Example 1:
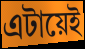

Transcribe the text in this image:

এটায়েই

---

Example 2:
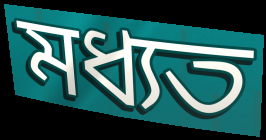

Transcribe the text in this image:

মধ্যত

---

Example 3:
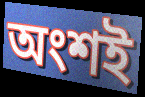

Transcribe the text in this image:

অংশই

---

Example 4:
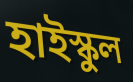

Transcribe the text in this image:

হাইস্কুল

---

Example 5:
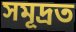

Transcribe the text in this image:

সমূদ্ৰত